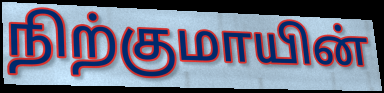
நிற்குமாயின்